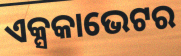
ଏକ୍ସକାଭେଟର